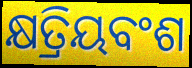
କ୍ଷତ୍ରିୟବଂଶ